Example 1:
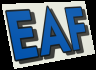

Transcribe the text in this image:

EAF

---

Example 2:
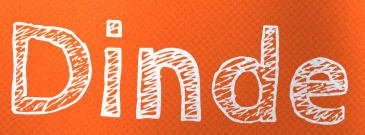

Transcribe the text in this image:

Dinde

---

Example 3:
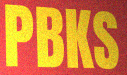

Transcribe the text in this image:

PBKS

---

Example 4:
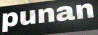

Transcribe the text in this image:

punan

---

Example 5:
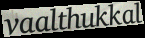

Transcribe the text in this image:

vaalthukkal